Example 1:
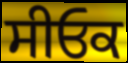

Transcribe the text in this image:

ਸੀਓਕ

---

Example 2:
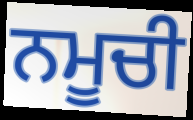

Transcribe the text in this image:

ਨਮੂਚੀ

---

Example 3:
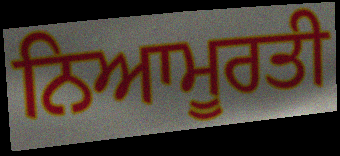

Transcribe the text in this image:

ਨਿਆਮੂਰਤੀ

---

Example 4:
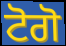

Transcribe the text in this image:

ਟੋਗੋ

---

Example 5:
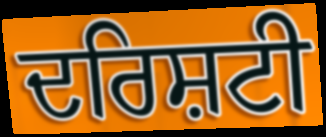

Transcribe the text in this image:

ਦਰਿਸ਼ਟੀ